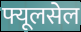
फ्यूलसेल